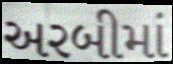
અરબીમાં